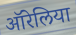
ऑरेलिया